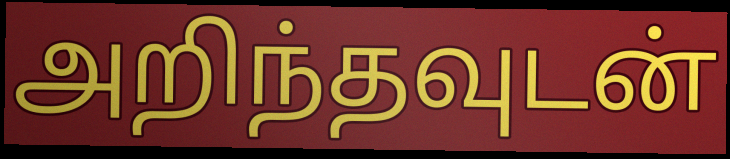
அறிந்தவுடன்